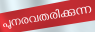
പുനരവതരിക്കുന്ന